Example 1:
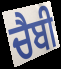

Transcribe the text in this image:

ਚੈਬੀ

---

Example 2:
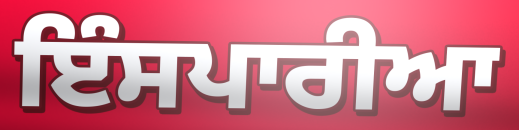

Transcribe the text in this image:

ਇੰਸਪਾਰੀਆ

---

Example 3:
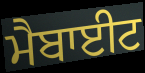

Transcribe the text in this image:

ਮੈਬਾਈਟ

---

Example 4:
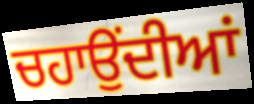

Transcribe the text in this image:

ਚਹਾਉਂਦੀਆਂ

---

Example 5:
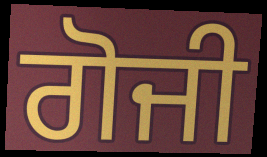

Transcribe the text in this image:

ਗੋਜੀ